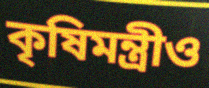
কৃষিমন্ত্রীও